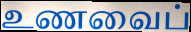
உணவைப்